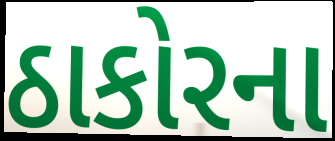
ઠાકોરના